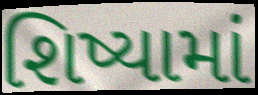
શિષ્યામાં